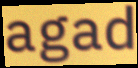
agad